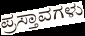
ಪ್ರಸ್ತಾವಗಳು